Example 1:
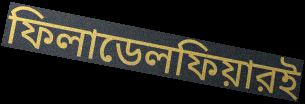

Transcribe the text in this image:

ফিলাডেলফিয়ারই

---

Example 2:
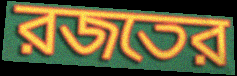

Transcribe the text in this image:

রজতের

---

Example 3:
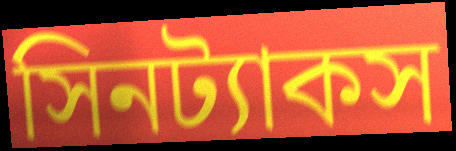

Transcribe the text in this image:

সিনট্যাকস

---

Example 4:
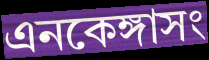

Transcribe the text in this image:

এনকেঙ্গাসং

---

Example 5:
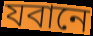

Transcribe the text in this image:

যবানে